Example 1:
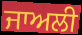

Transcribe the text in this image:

ਜਾਅਲੀ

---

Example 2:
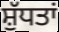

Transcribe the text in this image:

ਸ਼ੁੱਧਤਾਂ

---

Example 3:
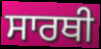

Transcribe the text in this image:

ਸਾਰਥੀ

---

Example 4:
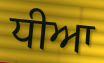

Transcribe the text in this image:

ਧੀਆ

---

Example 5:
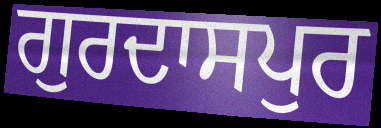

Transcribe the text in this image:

ਗੁਰਦਾਸਪੁਰ